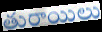
తురాయిలు